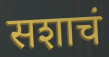
सशाचं